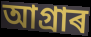
আগ্ৰাৰ